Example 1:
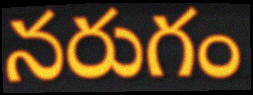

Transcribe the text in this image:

నరుగం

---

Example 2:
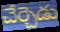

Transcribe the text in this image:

చేర్చెడు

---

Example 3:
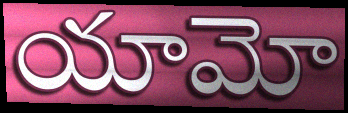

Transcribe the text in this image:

యామో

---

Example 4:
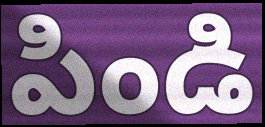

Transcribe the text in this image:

పిండి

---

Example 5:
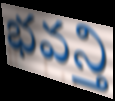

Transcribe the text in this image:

భవన్తి